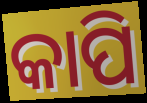
କାପି